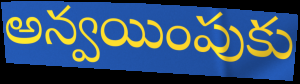
అన్వయింపుకు